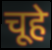
चूहे